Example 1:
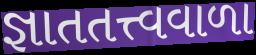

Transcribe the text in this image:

જ્ઞાતતત્ત્વવાળા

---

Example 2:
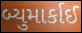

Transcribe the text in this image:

બ્યુમાર્કાઈ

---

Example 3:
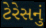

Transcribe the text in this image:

ટેરેસનું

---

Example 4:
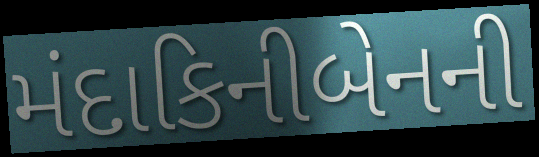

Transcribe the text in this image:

મંદાકિનીબેનની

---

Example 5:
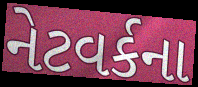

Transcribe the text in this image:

નેટવર્કના